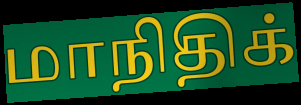
மாநிதிக்